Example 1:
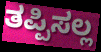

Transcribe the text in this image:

ತಪ್ಪಿಸಲ್ಲ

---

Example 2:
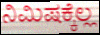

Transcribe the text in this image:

ನಿಮಿಷಕ್ಕೆಲ್ಲ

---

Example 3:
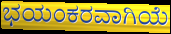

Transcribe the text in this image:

ಭಯಂಕರವಾಗಿಯೆ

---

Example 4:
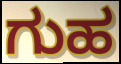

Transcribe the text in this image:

ಗುಹ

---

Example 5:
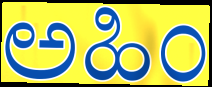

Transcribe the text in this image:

ಅಹಿಂ